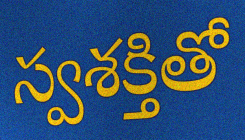
స్వశక్తితో